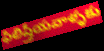
ఫిలిష్తీయవాళ్ళకు